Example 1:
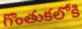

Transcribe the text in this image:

గొంతుకలోకి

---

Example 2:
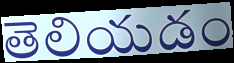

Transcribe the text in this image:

తెలియడం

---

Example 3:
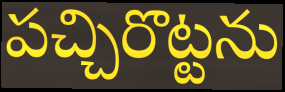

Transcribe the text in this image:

పచ్చిరొట్టను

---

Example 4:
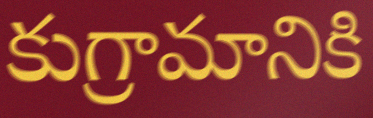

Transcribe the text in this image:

కుగ్రామానికి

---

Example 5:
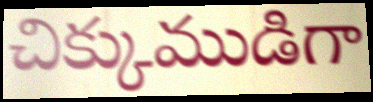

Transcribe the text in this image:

చిక్కుముడిగా